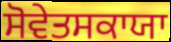
ਸੋਵੇਤਸਕਾਯਾ